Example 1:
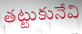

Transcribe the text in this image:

తట్టుకునేవి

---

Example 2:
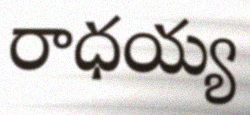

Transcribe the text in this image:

రాధయ్య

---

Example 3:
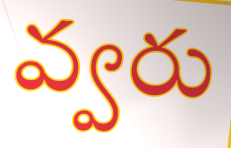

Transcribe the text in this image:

వ్వరు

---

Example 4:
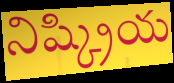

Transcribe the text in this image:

నిష్క్రియ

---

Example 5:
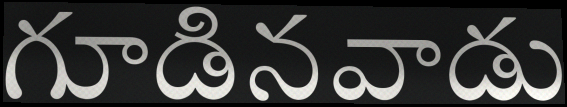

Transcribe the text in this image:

గూడినవాడు